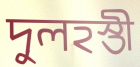
দুলহস্তী